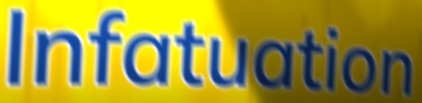
Infatuation